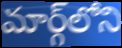
మార్గ్‌లోని